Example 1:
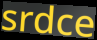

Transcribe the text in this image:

srdce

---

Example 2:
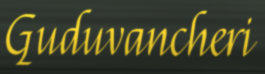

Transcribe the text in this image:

Guduvancheri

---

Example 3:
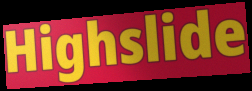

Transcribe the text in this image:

Highslide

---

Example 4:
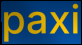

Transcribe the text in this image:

paxi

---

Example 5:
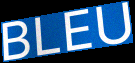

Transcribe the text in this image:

BLEU